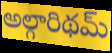
అల్గారిథమ్